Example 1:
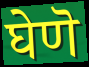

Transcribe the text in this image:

घेणॆ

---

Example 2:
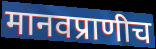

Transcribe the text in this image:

मानवप्राणीच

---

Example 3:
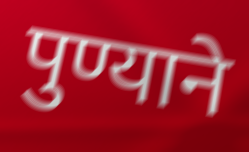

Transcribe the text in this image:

पुण्याने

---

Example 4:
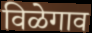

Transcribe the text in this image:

विळेगाव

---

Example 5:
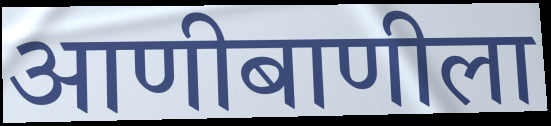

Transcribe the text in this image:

आणीबाणीला